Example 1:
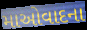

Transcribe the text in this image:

માઓવાદના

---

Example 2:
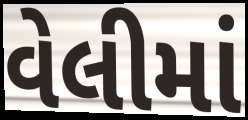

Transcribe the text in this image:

વેલીમાં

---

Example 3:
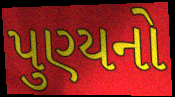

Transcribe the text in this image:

પુણ્યનો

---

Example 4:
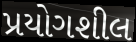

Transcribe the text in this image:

પ્રયોગશીલ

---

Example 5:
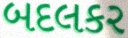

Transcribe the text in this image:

બદલકર